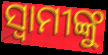
ସ୍ୱାମୀଙ୍କୁ